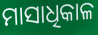
ମାସାଧିକାଳ